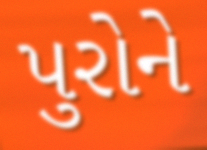
પુરોને